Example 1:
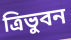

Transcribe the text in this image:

ত্রিভুবন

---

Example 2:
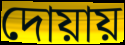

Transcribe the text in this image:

দোয়ায়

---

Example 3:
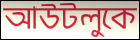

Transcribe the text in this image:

আউটলুকে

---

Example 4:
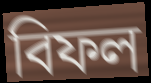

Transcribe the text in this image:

বিফল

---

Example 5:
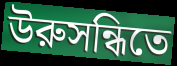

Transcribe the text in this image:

উরুসন্ধিতে